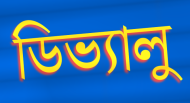
ডিভ্যালু